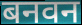
बनवन